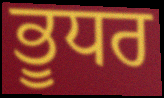
ਭੂਧਰ